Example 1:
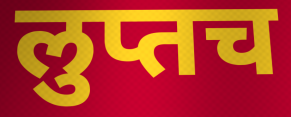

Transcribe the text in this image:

लुप्तच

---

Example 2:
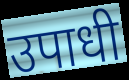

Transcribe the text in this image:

उपाधी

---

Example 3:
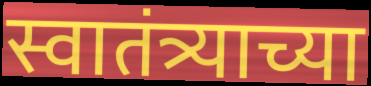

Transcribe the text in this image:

स्वातंत्र्याच्या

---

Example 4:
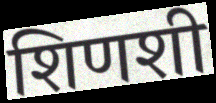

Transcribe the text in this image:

शिणशी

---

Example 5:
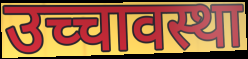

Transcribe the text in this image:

उच्चावस्था